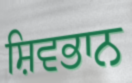
ਸ਼ਿਵਭਾਨ